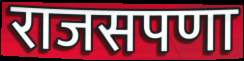
राजसपणा